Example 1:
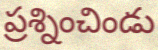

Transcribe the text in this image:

ప్రశ్నించిండు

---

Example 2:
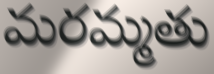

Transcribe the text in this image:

మరమ్మతు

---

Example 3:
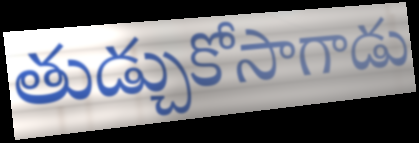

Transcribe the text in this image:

తుడ్చుకోసాగాడు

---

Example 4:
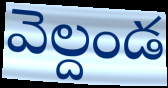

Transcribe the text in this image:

వెల్దండ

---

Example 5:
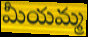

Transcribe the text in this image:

మీయమ్మ